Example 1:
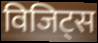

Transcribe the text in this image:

विजिट्स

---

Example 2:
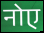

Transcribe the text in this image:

नोए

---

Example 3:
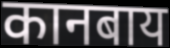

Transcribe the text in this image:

कानबाय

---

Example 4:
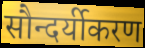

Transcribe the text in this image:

सौन्दर्यीकरण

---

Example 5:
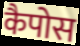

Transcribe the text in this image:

कैपोस